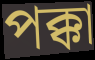
পক্কা